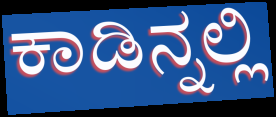
ಕಾಡಿನ್ನಲ್ಲಿ